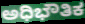
ಅಧಿಭೌತಿಕ